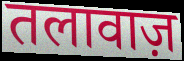
तलावाज़